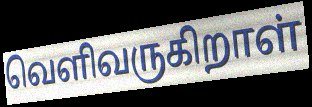
வெளிவருகிறாள்